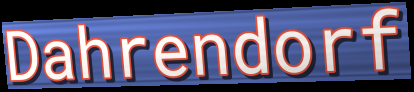
Dahrendorf